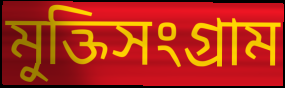
মুক্তিসংগ্রাম